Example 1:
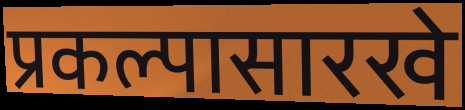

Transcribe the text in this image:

प्रकल्पासारखे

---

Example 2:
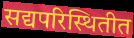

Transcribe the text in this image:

सद्यपरिस्थितीत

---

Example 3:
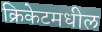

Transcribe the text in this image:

क्रिकेटमधील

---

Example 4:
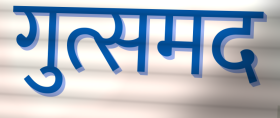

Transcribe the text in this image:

गुत्समद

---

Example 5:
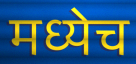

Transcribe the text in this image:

मध्‍येच